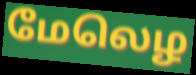
மேலெழ